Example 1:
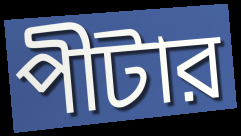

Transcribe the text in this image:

পীটার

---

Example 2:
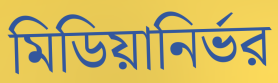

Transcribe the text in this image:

মিডিয়ানির্ভর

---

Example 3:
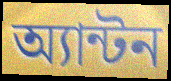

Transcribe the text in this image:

অ্যান্টন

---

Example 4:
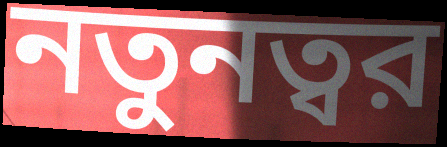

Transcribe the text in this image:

নতুনত্বর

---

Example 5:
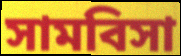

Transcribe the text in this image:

সামবিসা